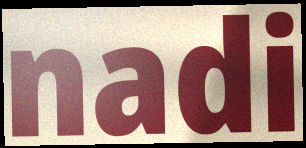
nadi